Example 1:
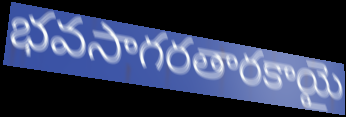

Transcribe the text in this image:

భవసాగరతారకాయై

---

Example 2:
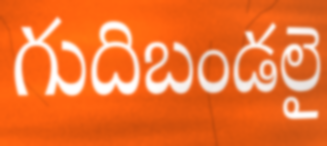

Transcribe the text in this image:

గుదిబండలై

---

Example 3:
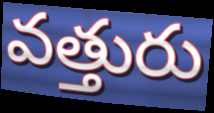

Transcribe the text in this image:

వత్తురు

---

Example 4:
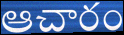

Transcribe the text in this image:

ఆచారం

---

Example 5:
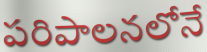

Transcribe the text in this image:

పరిపాలనలోనే